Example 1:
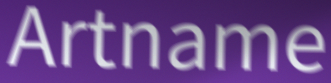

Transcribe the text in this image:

Artname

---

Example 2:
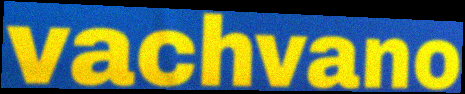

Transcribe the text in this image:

vachvano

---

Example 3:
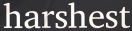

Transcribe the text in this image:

harshest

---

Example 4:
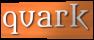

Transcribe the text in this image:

quark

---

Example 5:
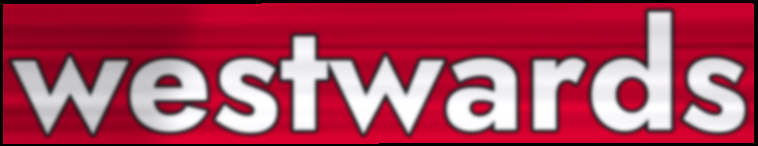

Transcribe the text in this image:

westwards